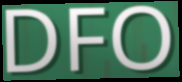
DFO